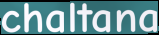
chaltana